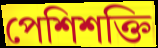
পেশিশক্তি